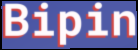
Bipin